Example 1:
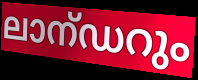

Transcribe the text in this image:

ലാന്ഡറും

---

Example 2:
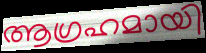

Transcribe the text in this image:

ആഗ്രഹമായി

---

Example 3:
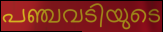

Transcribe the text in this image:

പഞ്ചവടിയുടെ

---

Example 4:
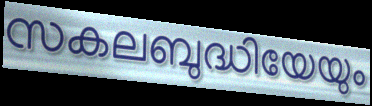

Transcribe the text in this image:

സകലബുദ്ധിയേയും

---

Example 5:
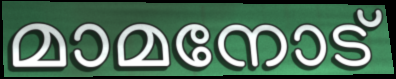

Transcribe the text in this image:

മാമനോട്